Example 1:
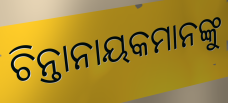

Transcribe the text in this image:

ଚିନ୍ତାନାୟକମାନଙ୍କୁ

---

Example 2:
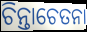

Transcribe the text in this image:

ଚିନ୍ତାଚେତନା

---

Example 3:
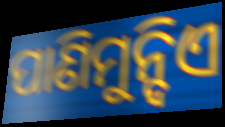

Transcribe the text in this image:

ପାଣିମୁନ୍ଦିଏ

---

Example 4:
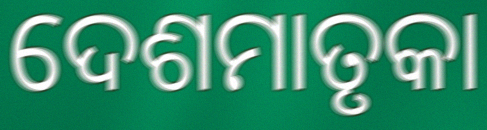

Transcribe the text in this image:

ଦେଶମାତୃକା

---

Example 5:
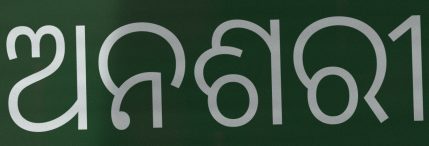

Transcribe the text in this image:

ଅନଶରୀ